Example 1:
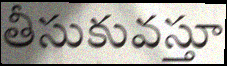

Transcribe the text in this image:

తీసుకువస్తూ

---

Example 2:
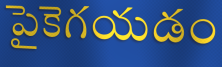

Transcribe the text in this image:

పైకెగయడం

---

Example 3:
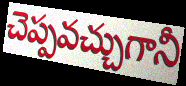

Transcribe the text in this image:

చెప్పవచ్చుగానీ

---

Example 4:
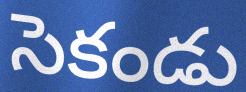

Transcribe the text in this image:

సెకండు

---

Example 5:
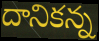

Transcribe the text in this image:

దానికన్న